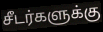
சீடர்களுக்கு